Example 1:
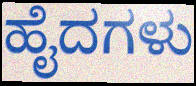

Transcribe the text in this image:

ಹೈದಗಳು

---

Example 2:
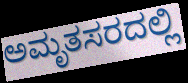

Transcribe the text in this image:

ಅಮೃತಸರದಲ್ಲಿ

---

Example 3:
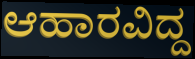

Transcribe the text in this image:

ಆಹಾರವಿದ್ದ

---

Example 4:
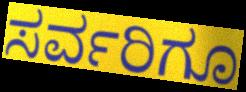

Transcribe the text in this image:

ಸರ್ವರಿಗೂ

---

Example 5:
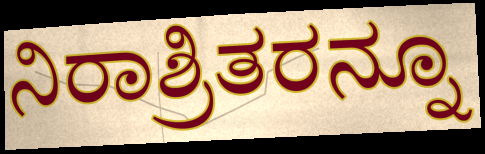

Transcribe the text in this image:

ನಿರಾಶ್ರಿತರನ್ನೂ